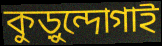
কুড়ুন্দোগাই